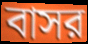
বাসর